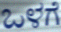
ಒಳಗೆ